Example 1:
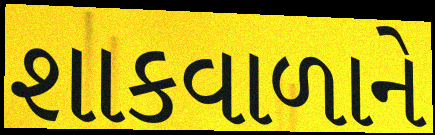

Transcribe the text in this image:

શાકવાળાને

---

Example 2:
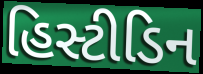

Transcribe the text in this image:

હિસ્ટીડિન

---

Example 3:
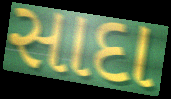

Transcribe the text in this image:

સાદા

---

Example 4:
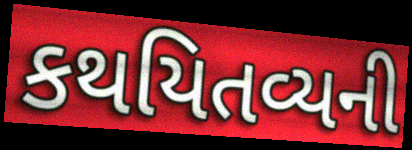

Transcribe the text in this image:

કથયિતવ્યની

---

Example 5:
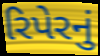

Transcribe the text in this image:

રિપેરનું